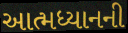
આત્મધ્યાનની